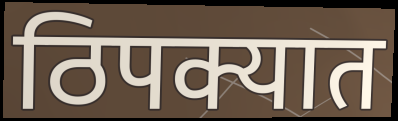
ठिपक्यात